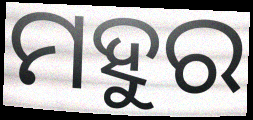
ମହୁର